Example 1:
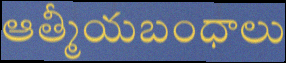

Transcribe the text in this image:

ఆత్మీయబంధాలు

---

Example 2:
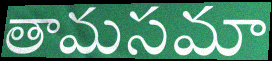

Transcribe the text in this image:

తామసమా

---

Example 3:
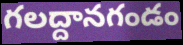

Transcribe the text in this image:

గలద్దానగండం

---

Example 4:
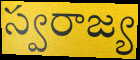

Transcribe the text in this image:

స్వరాజ్య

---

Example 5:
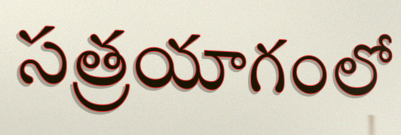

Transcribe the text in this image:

సత్రయాగంలో